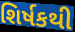
શિર્ષકથી